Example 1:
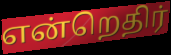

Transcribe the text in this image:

என்றெதிர்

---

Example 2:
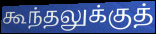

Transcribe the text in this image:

கூந்தலுக்குத்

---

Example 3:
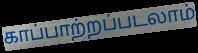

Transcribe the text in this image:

காப்பாற்றப்படலாம்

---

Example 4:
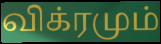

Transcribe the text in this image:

விக்ரமும்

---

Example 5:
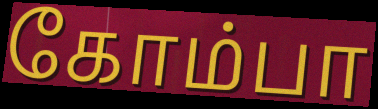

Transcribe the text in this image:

கோம்பா